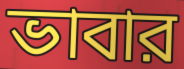
ভাবার